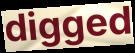
digged